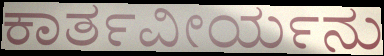
ಕಾರ್ತವೀರ್ಯನು